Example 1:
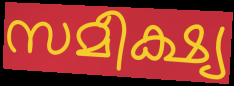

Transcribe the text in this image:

സമീക്ഷ്യ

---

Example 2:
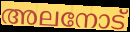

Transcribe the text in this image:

അലനോട്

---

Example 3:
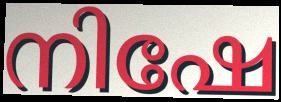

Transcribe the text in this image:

നിഷേ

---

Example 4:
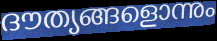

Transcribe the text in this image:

ദൗത്യങ്ങളൊന്നും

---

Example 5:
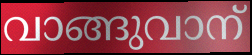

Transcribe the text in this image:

വാങ്ങുവാന്